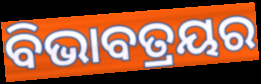
ବିଭାବତ୍ରୟର